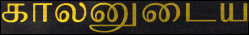
காலனுடைய